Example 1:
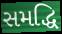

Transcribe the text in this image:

સમદ્ધિ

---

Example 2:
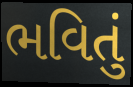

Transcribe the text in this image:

ભવિતું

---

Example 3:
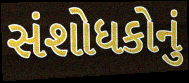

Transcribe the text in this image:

સંશોધકોનું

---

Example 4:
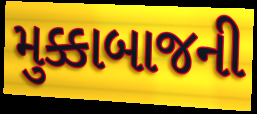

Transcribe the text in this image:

મુક્કાબાજની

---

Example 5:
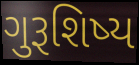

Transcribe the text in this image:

ગુરૂશિષ્ય